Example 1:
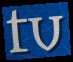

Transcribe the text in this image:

tu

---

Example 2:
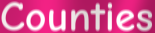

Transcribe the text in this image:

Counties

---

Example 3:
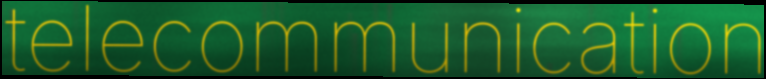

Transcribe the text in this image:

telecommunication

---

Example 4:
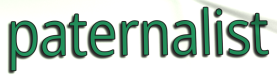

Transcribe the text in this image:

paternalist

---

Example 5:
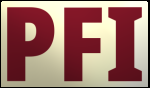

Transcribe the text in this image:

PFI